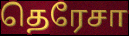
தெரேசா